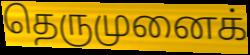
தெருமுனைக்